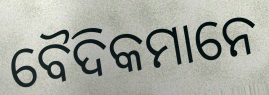
ବୈଦିକମାନେ